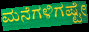
ಮನೆಗಳಿಗಷ್ಟೇ